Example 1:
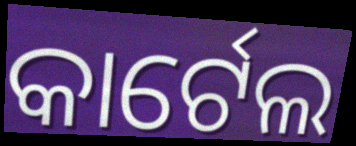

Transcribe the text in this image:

କାର୍ଟେଲ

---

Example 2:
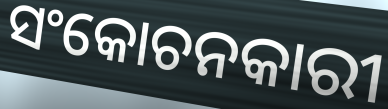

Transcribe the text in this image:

ସଂକୋଚନକାରୀ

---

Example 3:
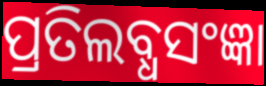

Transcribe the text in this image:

ପ୍ରତିଲବ୍ଧସଂଜ୍ଞା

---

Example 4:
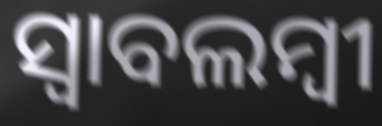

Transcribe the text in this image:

ସ୍ଵାବଲମ୍ଵୀ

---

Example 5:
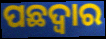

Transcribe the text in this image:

ପଛଦ୍ୱାର